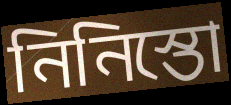
নিনিস্তো